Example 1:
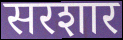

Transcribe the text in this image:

सरशार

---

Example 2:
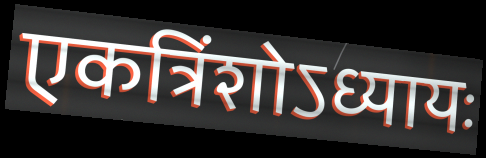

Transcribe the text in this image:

एकत्रिंशोऽध्यायः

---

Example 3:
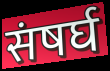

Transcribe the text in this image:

संषर्घ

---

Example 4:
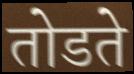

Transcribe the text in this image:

तोडते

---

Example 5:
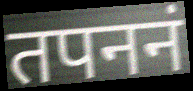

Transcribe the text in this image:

तपननं